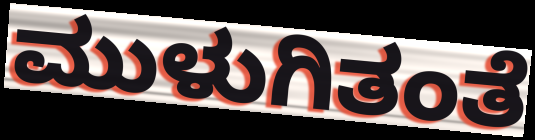
ಮುಳುಗಿತಂತೆ